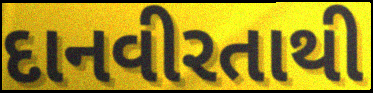
દાનવીરતાથી